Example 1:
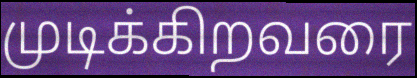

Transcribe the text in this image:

முடிக்கிறவரை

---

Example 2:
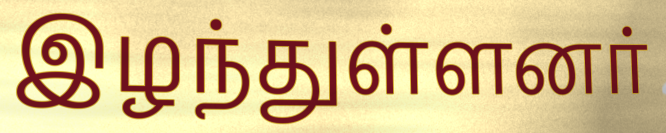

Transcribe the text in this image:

இழந்துள்ளனர்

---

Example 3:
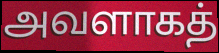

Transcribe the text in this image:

அவளாகத்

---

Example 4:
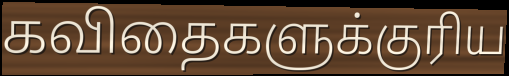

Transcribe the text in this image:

கவிதைகளுக்குரிய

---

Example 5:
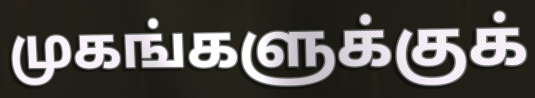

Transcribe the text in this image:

முகங்களுக்குக்